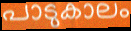
പാടുകാലം